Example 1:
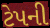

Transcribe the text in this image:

ટેપની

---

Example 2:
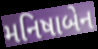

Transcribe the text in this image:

મનિષાબેન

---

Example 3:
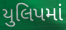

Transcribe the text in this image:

યુલિપમાં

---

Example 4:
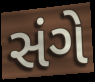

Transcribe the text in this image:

સંગે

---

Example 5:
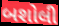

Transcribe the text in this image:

બશોલી